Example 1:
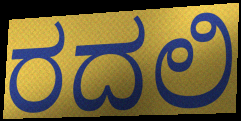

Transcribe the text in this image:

ರದಲಿ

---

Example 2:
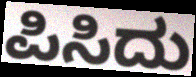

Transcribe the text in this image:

ಪಿಸಿದು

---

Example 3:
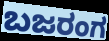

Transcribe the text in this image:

ಬಜರಂಗ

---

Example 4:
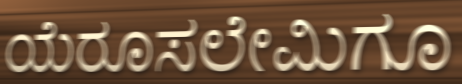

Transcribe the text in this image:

ಯೆರೂಸಲೇಮಿಗೂ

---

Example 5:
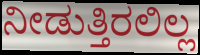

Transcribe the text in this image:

ನೀಡುತ್ತಿರಲಿಲ್ಲ